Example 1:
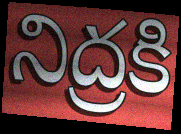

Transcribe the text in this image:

నిద్రకి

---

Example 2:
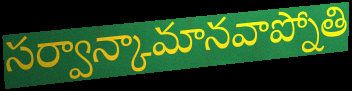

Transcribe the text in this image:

సర్వాన్కామానవాప్నోతి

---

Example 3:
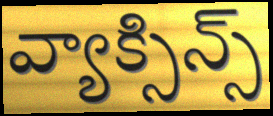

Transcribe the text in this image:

వ్యాక్సిన్స్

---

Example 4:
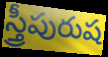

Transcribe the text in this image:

స్త్రీపురుష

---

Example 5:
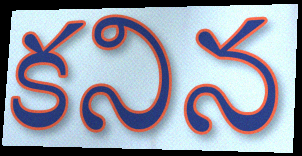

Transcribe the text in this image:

కనిన